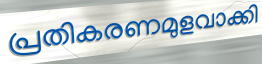
പ്രതികരണമുളവാക്കി